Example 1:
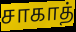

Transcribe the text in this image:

சாகாத்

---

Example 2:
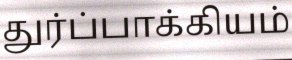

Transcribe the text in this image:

துர்ப்பாக்கியம்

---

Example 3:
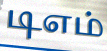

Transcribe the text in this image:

டிஎம்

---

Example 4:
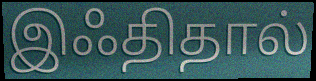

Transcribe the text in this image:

இஃதிதால்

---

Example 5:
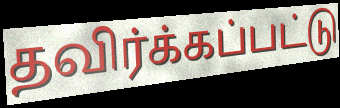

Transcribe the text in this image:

தவிர்க்கப்பட்டு